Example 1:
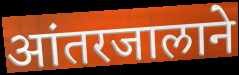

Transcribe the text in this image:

आंतरजालाने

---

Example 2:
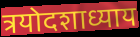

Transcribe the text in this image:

त्रयोदशाध्याय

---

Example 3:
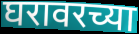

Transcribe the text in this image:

घरावरच्या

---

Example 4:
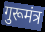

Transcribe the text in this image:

गुरूमंत्र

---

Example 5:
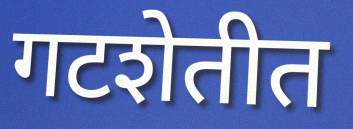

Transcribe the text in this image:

गटशेतीत